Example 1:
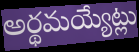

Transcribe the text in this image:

అర్థమయ్యేట్లు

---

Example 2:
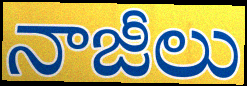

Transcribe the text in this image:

నాజీలు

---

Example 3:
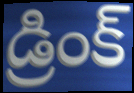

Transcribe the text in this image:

డ్రింక్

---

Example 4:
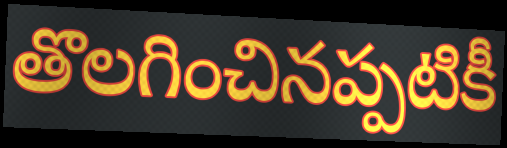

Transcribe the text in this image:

తొలగించినప్పటికీ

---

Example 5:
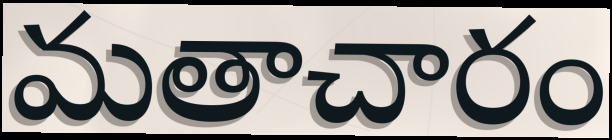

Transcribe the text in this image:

మతాచారం